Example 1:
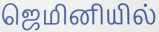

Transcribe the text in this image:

ஜெமினியில்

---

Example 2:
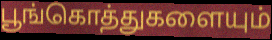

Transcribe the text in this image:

பூங்கொத்துகளையும்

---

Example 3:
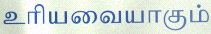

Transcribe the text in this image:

உரியவையாகும்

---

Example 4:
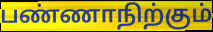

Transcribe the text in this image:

பண்ணாநிற்கும்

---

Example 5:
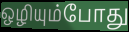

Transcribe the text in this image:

ஒழியும்போது